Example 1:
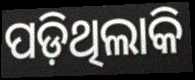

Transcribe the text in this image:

ପଡ଼ିଥିଲାକି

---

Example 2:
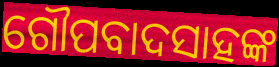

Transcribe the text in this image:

ଗୌପବାଦସାହଙ୍କ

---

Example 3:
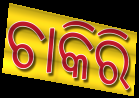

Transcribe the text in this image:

ଚାକିରି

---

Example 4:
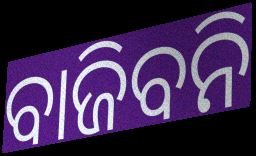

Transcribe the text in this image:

ବାଜିବନି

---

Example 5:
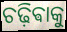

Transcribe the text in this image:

ଚଢ଼ିଵାକୁ